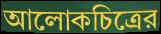
আলোকচিত্রের